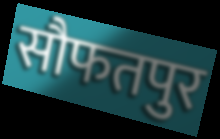
सौफतपुर